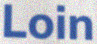
Loin